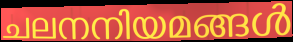
ചലനനിയമങ്ങൾ